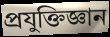
প্রযুক্তিজ্ঞান